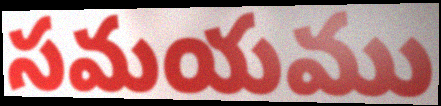
సమయము